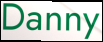
Danny